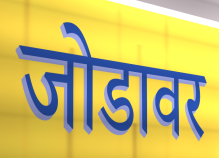
जोडावर